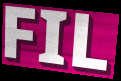
FIL